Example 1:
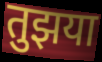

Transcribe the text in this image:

तुझया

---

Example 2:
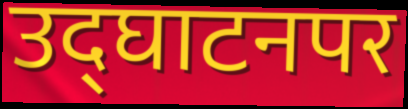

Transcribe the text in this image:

उद्घाटनपर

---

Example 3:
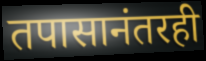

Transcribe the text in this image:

तपासानंतरही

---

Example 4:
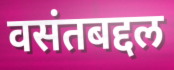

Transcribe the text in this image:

वसंतबद्दल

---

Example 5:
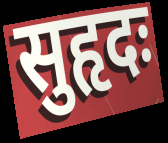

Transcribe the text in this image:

सुहृदः